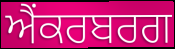
ਐਂਕਰਬਰਗ